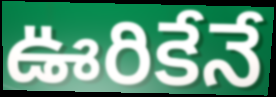
ఊరికేనే